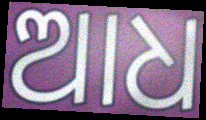
ଆଧ